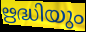
ഋദ്ധിയും